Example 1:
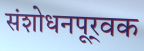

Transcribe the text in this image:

संशोधनपूर्वक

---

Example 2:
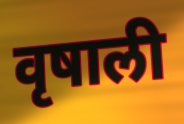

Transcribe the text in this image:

वृषाली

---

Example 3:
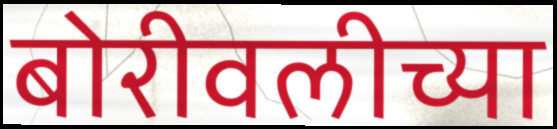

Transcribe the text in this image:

बोरीवलीच्या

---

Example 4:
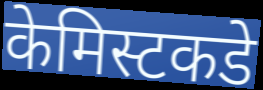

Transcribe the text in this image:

केमिस्टकडे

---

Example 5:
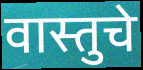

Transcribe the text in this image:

वास्तुचे